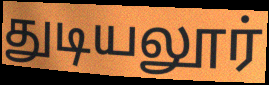
துடியலூர்